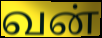
வன்